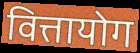
वित्तायोग